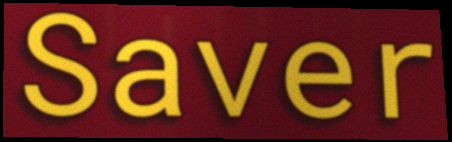
Saver